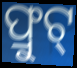
ଫ୍ରୁଟ୍